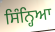
ਸਿੰਨ੍ਹਿਆ